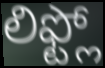
లిఫ్ట్లో